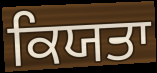
ਕਿਯਤਾ